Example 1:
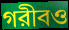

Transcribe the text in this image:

গরীবও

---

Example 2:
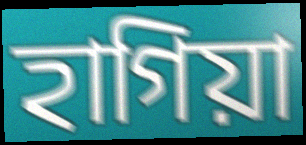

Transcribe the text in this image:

হাগিয়া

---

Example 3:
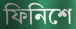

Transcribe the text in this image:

ফিনিশে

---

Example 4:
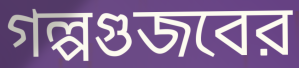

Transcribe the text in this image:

গল্পগুজবের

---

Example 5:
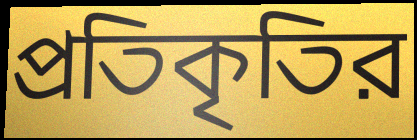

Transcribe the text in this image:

প্রতিকৃতির